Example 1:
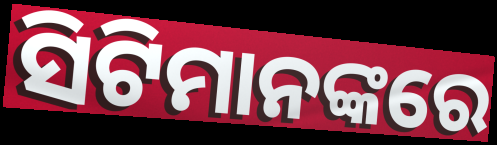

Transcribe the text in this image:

ସିଟିମାନଙ୍କରେ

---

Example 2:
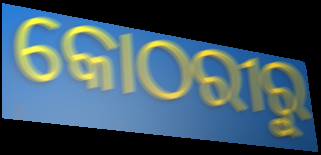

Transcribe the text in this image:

କୋଠରୀରୁ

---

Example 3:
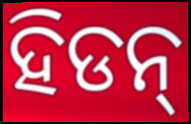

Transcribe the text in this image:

ହିଡନ୍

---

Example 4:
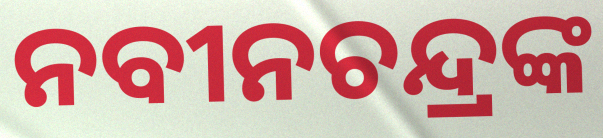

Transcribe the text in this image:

ନବୀନଚନ୍ଦ୍ରଙ୍କ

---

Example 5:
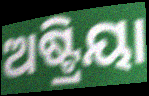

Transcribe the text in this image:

ଅଷ୍ଟ୍ରିୟା